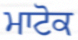
ਮਾਟੋਕ